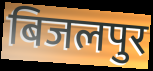
बिजलपुर